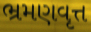
ભ્રમણવૃત્ત